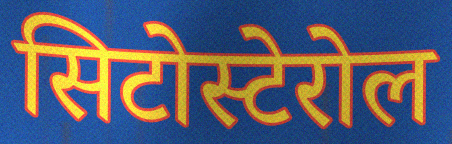
सिटोस्टेरोल